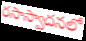
రసాస్వాదనలో